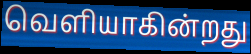
வெளியாகின்றது